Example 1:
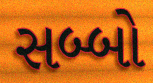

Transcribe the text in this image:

સબ્બો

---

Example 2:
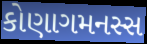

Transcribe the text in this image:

કોણાગમનસ્સ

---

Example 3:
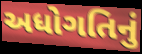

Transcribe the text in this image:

અધોગતિનું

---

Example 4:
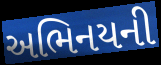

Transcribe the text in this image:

અભિનયની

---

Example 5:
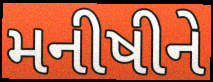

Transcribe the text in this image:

મનીષીને